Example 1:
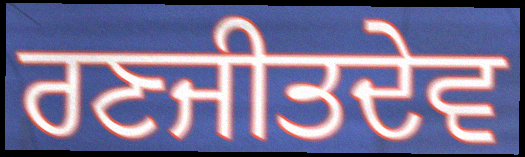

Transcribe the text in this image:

ਰਣਜੀਤਦੇਵ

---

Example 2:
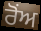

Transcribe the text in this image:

ਰੋਂਅ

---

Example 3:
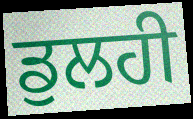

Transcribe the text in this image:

ਡੁਲਹੀ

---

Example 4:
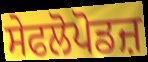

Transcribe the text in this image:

ਸੇਫਲੋਪੋਡਜ਼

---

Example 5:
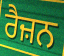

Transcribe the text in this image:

ਰੈਜ਼ਨ